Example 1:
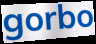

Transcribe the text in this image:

gorbo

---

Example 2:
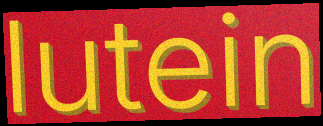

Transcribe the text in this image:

lutein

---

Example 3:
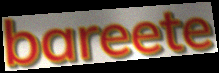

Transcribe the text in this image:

bareete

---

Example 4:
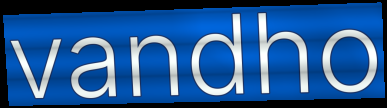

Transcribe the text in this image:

vandho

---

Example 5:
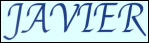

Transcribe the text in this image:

JAVIER